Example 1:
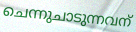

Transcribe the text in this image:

ചെന്നുചാടുന്നവന്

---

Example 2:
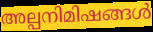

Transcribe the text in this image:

അല്പനിമിഷങ്ങൾ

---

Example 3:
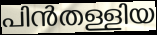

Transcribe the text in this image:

പിൻതള്ളിയ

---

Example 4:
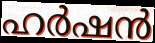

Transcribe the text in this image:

ഹർഷൻ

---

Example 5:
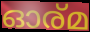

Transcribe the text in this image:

ഓര്മ